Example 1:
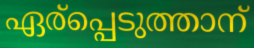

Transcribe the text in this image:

ഏര്പ്പെടുത്താന്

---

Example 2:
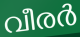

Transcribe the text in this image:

വീരർ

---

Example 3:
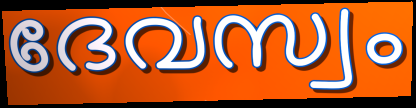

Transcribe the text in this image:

ദേവസ്വം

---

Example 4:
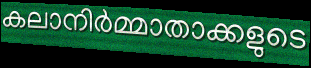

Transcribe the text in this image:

കലാനിർമ്മാതാക്കളുടെ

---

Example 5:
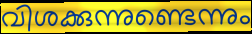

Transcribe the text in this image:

വിശക്കുന്നുണ്ടെന്നും